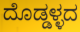
ದೊಡ್ಡಳ್ಳದ